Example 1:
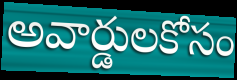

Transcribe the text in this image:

అవార్డులకోసం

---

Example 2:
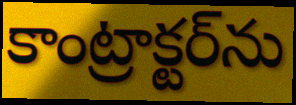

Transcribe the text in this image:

కాంట్రాక్టర్‌ను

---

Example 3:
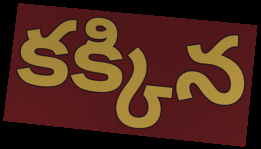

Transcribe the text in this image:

కక్కిన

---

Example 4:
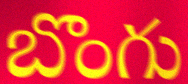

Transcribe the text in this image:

బొంగు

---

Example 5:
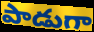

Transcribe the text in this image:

పాడుగా